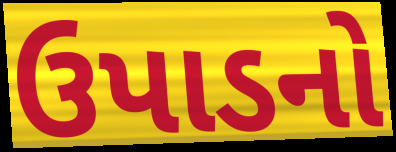
ઉપાડનો